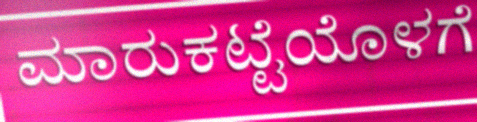
ಮಾರುಕಟ್ಟೆಯೊಳಗೆ